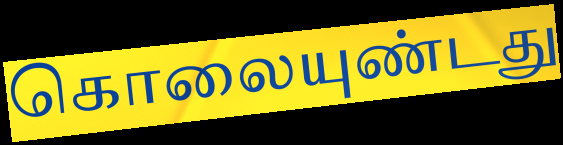
கொலையுண்டது